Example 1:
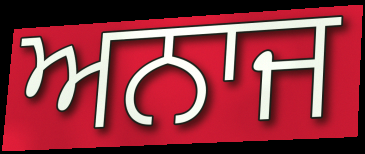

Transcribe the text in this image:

ਅਨਾਜ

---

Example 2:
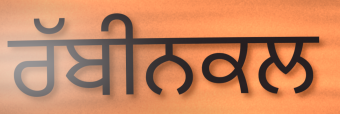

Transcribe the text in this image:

ਰੱਬੀਨਕਲ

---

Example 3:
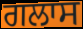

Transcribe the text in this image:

ਗਲਾਸ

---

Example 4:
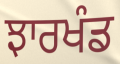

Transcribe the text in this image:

ਝਾਰਖੰਡ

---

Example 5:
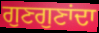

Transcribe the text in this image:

ਗੁਣਗੁਣਾਂਦਾ